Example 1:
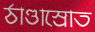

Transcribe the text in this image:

ঠাণ্ডাস্রোত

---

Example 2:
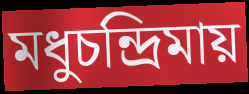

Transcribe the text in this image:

মধুচন্দ্রিমায়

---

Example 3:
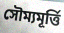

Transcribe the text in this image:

সৌম্যমূর্ত্তি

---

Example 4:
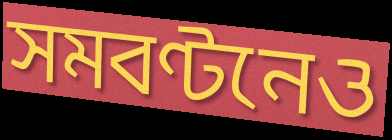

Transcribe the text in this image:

সমবণ্টনেও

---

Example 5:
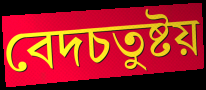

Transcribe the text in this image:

বেদচতুষ্টয়